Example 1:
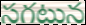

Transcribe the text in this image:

సగటున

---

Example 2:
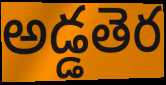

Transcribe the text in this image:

అడ్డతెర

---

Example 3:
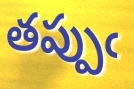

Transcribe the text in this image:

తప్పుఁ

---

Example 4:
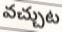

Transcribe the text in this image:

వచ్చుట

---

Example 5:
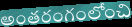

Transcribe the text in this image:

అంతరంగంలోంచి